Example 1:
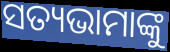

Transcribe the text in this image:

ସତ୍ୟଭାମାଙ୍କୁ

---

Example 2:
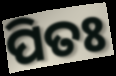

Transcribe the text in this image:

ପିତଃ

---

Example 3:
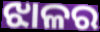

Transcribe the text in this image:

ଝାଳର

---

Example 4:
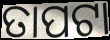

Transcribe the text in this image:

ତାପଟା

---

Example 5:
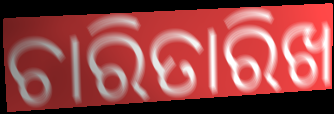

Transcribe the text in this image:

ଚାରିତାରିଖ